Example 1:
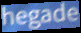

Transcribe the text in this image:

hegade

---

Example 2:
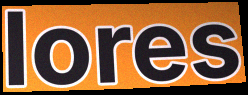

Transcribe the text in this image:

lores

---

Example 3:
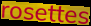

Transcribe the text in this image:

rosettes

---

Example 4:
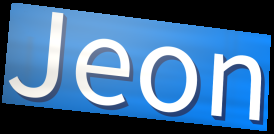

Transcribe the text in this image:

Jeon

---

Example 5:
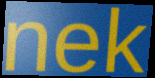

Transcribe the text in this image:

nek